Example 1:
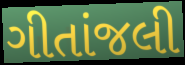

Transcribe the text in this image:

ગીતાંજલી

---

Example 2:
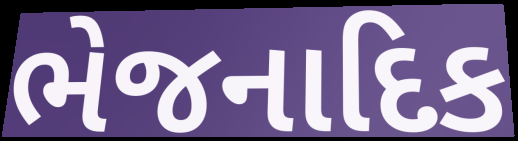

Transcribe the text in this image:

ભેજનાદિક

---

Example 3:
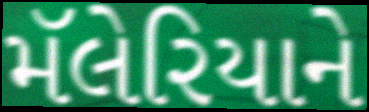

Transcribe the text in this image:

મૅલેરિયાને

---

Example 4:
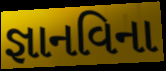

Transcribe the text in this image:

જ્ઞાનવિના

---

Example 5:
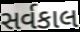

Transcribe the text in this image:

સર્વકાલ